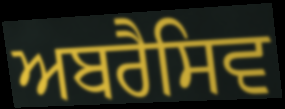
ਅਬਰੈਸਿਵ